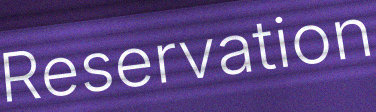
Reservation